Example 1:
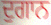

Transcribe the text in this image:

ਦੁਗਾਨ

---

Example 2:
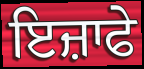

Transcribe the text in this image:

ਇਜ਼ਾਫੇ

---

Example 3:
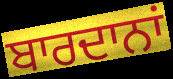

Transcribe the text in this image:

ਬਾਰਦਾਨਾਂ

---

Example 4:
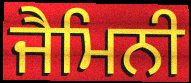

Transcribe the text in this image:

ਜੈਮਿਨੀ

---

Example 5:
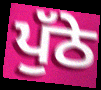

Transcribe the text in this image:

ਪੁੱਠੇ